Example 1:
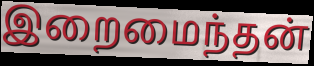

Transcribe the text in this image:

இறைமைந்தன்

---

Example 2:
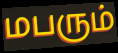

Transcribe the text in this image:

மபரும்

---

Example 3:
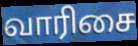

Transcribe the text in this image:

வாரிசை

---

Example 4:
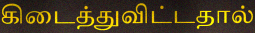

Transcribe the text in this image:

கிடைத்துவிட்டதால்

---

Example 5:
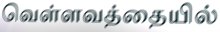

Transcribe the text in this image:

வெள்ளவத்தையில்